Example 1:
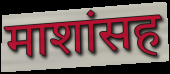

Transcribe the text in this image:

माशांसह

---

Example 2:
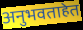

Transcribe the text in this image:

अनुभवताहेत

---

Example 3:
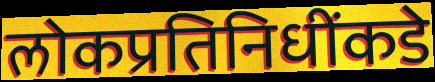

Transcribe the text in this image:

लोकप्रतिनिधींकडे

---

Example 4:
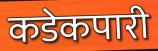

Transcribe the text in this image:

कडेकपारी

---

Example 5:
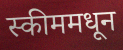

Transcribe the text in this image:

स्कीममधून